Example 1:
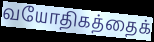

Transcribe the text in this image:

வயோதிகத்தைக்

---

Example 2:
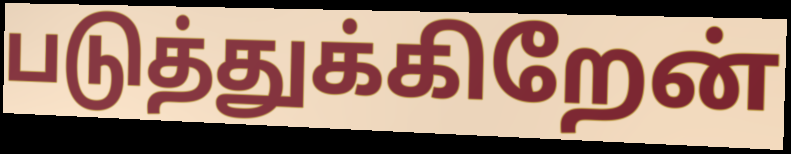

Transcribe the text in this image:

படுத்துக்கிறேன்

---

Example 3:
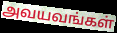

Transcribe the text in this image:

அவயவங்கள்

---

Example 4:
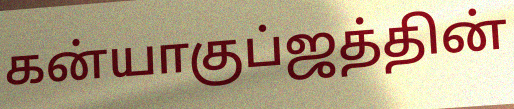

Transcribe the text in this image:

கன்யாகுப்ஜத்தின்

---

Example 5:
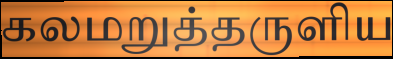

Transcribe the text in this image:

கலமறுத்தருளிய